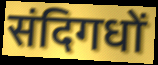
संदिगधों